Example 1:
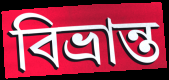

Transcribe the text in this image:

বিভ্রান্ত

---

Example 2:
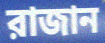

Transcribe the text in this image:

রাজান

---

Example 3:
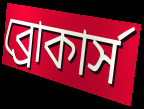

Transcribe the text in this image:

ব্রোকার্স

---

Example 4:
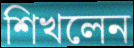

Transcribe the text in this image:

শিখলেন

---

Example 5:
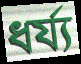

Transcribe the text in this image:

ধর্য্য